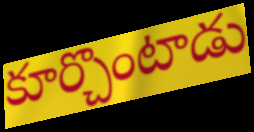
కూర్చొంటాడు